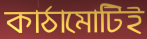
কাঠামোটিই